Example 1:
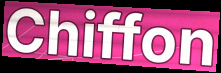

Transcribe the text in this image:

Chiffon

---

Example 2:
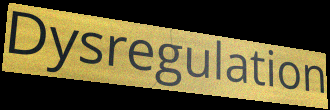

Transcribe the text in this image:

Dysregulation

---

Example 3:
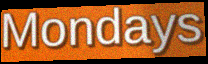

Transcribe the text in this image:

Mondays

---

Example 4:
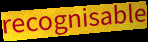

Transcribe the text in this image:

recognisable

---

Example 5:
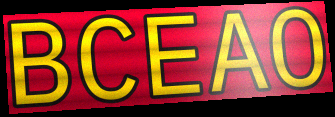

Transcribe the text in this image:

BCEAO